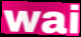
wai